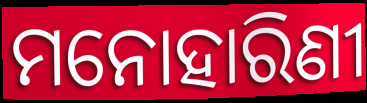
ମନୋହାରିଣୀ